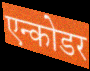
एन्कोडर